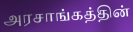
அரசாங்கத்தின்